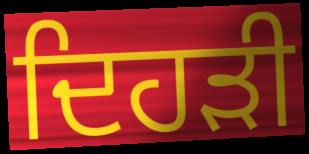
ਦਿਹੜੀ